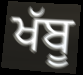
ਖੱਬੂ